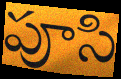
పూసి